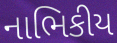
નાભિકીય